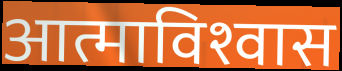
आत्माविश्वास